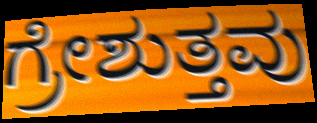
ಗ್ರೇಶುತ್ತವು